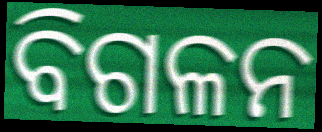
ବିଗଳନ